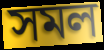
সমল